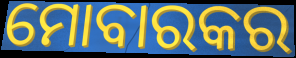
ମୋବାରକର